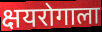
क्षयरोगाला